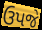
ઉપજે